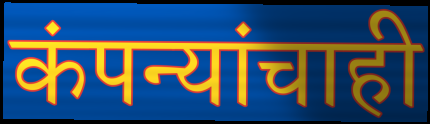
कंपन्यांचाही